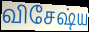
விசேஷ்ய